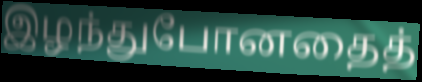
இழந்துபோனதைத்